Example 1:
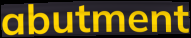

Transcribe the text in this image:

abutment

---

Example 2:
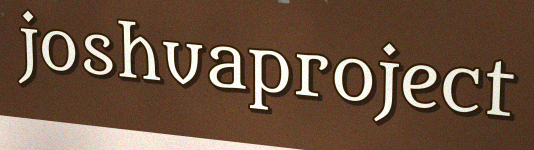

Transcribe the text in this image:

joshuaproject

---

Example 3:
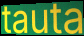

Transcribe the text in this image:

tauta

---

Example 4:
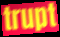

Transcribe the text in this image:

trupt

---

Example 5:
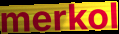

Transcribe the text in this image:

merkol